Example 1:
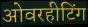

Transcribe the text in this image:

ओवरहीटिंग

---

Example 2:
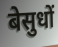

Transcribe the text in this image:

बेसुधों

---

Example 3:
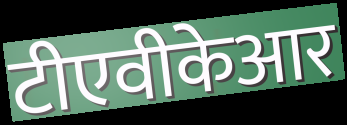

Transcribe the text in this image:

टीएवीकेआर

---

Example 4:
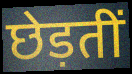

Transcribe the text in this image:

छेड़तीं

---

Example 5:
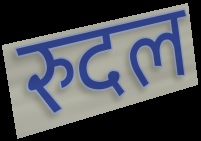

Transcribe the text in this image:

रुदल